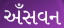
અઁસવન